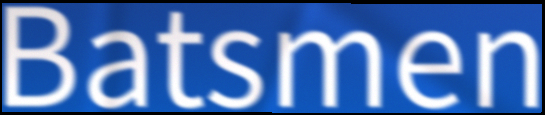
Batsmen